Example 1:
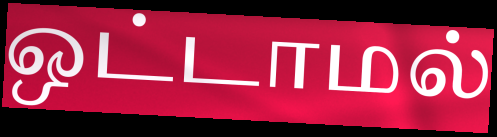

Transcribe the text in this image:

ஒட்டாமல்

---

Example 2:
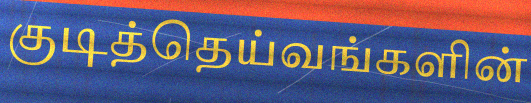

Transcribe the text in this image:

குடித்தெய்வங்களின்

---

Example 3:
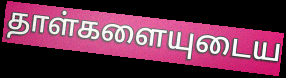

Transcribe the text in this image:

தாள்களையுடைய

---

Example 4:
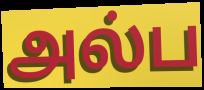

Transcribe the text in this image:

அல்ப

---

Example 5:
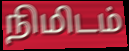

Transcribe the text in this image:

நிமிடம்